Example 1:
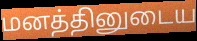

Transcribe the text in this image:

மனத்தினுடைய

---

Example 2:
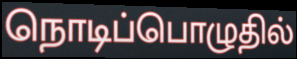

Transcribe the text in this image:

நொடிப்பொழுதில்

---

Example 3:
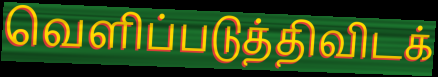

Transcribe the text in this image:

வெளிப்படுத்திவிடக்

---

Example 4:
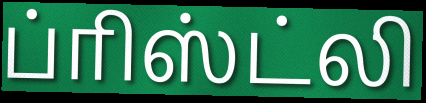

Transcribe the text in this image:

ப்ரிஸ்ட்லி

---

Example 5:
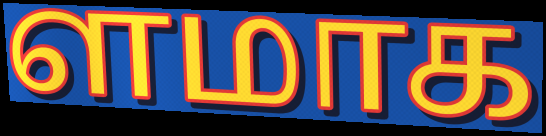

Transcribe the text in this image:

ளமாக